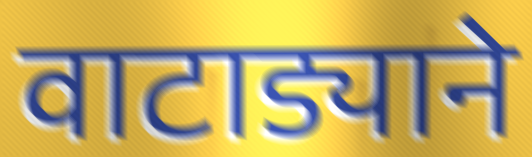
वाटाड्याने